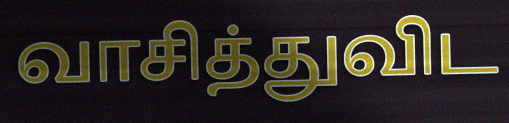
வாசித்துவிட